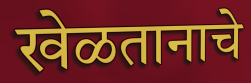
खेळतानाचे